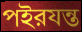
পইরযন্ত